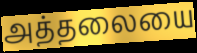
அத்தலையை